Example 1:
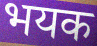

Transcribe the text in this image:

भयक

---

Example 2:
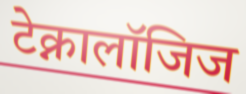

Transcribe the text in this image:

टेक्नालॉजिज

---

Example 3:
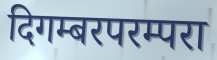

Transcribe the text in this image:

दिगम्बरपरम्परा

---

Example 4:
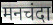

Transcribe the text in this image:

मनचंदा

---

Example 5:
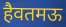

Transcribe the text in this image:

हैवतमऊ